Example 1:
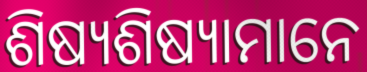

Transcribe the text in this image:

ଶିଷ୍ୟଶିଷ୍ୟାମାନେ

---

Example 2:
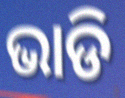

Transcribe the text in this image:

ଭାଡି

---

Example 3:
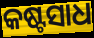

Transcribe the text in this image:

କଷ୍ଟସାଧ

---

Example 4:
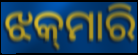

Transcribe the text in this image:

ଝକ୍‌ମାରି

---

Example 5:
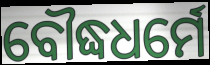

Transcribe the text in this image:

ବୌଦ୍ଧଧର୍ମେ